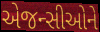
એજન્સીઓને